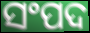
ସଂପଦ